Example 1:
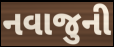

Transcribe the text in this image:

નવાજુની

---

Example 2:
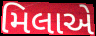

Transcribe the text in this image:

મિલાએ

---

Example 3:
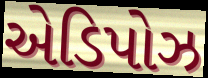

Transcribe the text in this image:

એડિપોઝ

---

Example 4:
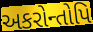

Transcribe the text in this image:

અકરોન્તોપિ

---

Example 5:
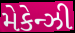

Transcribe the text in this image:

મેકેન્ઝી